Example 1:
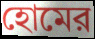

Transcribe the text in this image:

হোমের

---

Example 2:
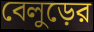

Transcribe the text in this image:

বেলুড়ের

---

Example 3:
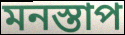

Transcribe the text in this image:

মনস্তাপ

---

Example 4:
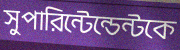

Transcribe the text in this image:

সুপারিন্টেন্ডেন্টকে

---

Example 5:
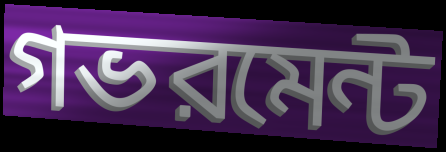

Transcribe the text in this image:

গভরমেন্ট